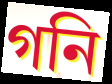
গনি